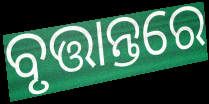
ବୃତ୍ତାନ୍ତରେ